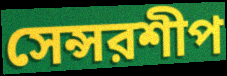
সেন্সরশীপ